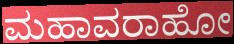
ಮಹಾವರಾಹೋ